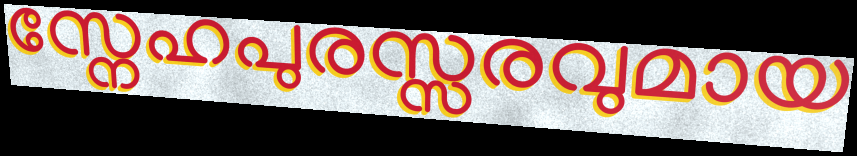
സ്നേഹപുരസ്സരവുമായ